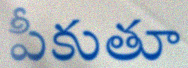
పీకుతూ